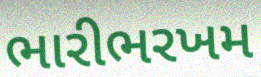
ભારીભરખમ